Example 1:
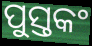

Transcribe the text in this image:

ପୁସ୍ତକଂ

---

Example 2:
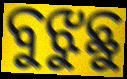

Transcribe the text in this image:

ବୁଝୁଛୁ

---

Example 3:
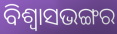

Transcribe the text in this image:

ବିଶ୍ଵାସଭଙ୍ଗର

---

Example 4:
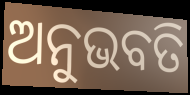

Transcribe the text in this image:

ଅନୁଭବତି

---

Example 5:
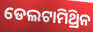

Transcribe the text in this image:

ଡେଲଟାମିଥ୍ରିନ